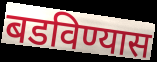
बडविण्यास